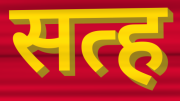
सत्ह